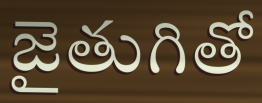
జైతుగితో